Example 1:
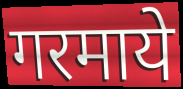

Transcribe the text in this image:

गरमाये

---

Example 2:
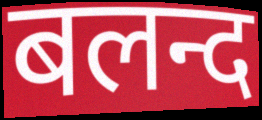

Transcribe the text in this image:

बलन्द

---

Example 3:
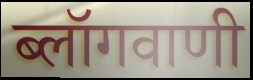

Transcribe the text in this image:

ब्लॉगवाणी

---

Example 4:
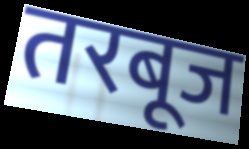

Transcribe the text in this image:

तरबूज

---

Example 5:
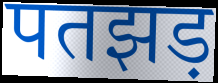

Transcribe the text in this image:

पतझड़